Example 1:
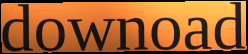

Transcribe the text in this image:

downoad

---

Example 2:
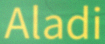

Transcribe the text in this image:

Aladi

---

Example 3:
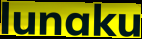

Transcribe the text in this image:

lunaku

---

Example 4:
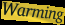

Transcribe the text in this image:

Warming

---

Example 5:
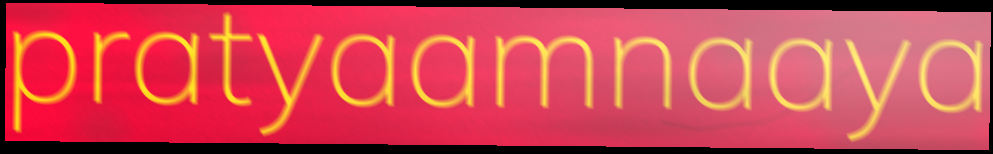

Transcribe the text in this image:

pratyaamnaaya